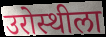
उरोस्थीला